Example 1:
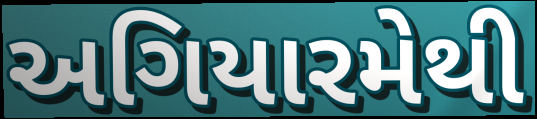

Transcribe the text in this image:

અગિયારમેથી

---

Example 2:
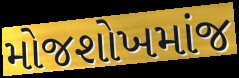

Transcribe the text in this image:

મોજશોખમાંજ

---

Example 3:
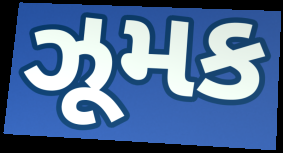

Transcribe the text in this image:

ઝૂમક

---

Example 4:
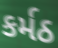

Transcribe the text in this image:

કર્મઠ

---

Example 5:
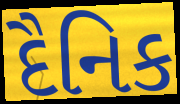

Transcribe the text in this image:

દૈનિક